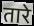
तारे